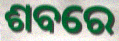
ଶବରେ